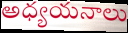
అధ్యయనాలు